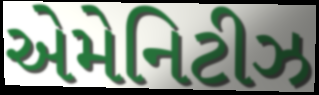
એમેનિટીઝ